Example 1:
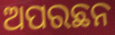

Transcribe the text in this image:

ଅପରଛନ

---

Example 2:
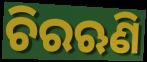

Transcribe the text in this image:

ଚିରଋଣି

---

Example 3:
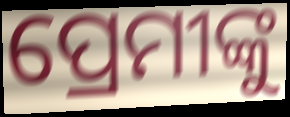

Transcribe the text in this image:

ପ୍ରେମୀଙ୍କୁ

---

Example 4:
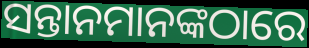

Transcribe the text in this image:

ସନ୍ତାନମାନଙ୍କଠାରେ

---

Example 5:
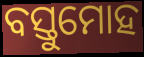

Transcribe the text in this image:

ବସ୍ତୁମୋହ